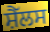
ਸ਼ੈੱਲਸ